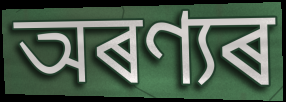
অৰণ্যৰ